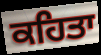
ਕਹਿਤਾ